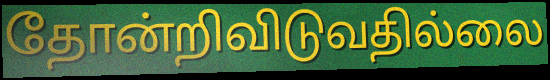
தோன்றிவிடுவதில்லை